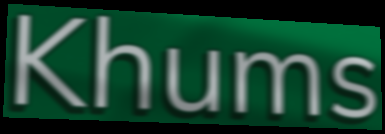
Khums